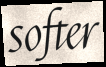
softer